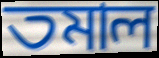
তমাল